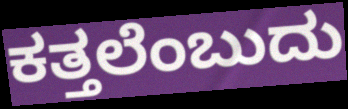
ಕತ್ತಲೆಂಬುದು